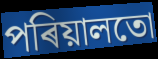
পৰিয়ালতো